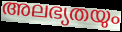
അലഭ്യതയും